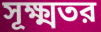
সূক্ষ্মতর